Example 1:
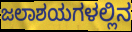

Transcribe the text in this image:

ಜಲಾಶಯಗಳಲ್ಲಿನ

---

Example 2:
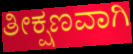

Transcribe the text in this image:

ತೀಕ್ಷಣವಾಗಿ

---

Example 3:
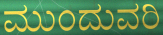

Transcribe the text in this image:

ಮುಂದುವರಿ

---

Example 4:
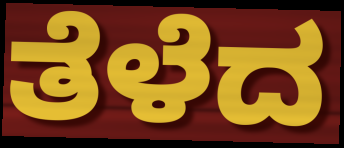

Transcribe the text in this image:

ತೆಳೆದ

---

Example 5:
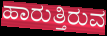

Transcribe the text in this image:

ಹಾರುತ್ತಿರುವ